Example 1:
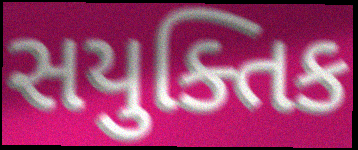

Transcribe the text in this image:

સયુક્તિક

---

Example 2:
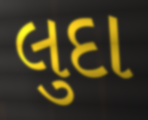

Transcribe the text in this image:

લુદા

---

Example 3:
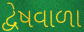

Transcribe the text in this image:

દ્વેષવાળા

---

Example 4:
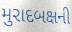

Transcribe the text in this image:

મુરાદબક્ષની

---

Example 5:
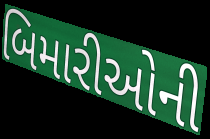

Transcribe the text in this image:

બિમારીઓની